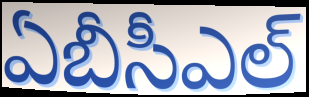
ఏబీసీఎల్